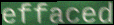
effaced